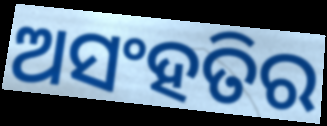
ଅସଂହତିର